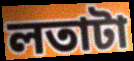
লতাটা